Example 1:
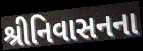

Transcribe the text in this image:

શ્રીનિવાસનના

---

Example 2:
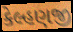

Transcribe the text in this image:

કેલ્હણજી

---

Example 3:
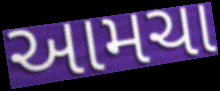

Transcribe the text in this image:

આમચા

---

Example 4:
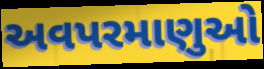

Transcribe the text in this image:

અવપરમાણુઓ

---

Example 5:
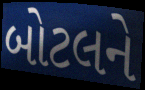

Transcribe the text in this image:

બોટલને